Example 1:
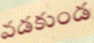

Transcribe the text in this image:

వడకుండ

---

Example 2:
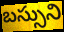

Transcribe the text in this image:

బస్సుని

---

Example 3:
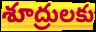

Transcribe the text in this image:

శూద్రులకు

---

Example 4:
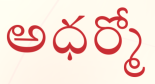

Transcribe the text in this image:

అధర్మో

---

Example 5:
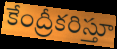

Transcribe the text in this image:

కేంద్రీకరిస్తూ